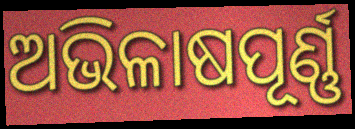
ଅଭିଳାଷପୂର୍ଣ୍ଣ